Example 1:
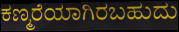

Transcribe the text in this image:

ಕಣ್ಮರೆಯಾಗಿರಬಹುದು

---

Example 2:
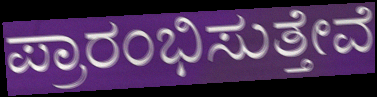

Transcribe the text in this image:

ಪ್ರಾರಂಭಿಸುತ್ತೇವೆ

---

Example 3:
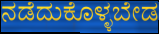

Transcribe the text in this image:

ನಡೆದುಕೊಳ್ಳಬೇಡ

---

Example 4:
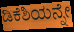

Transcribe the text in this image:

ಡಿಕೆಶಿಯನ್ನೇ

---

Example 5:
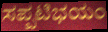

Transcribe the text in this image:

ಸಪ್ಪಟಿಭಯಂ